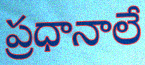
ప్రధానాలే